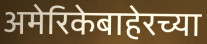
अमेरिकेबाहेरच्या